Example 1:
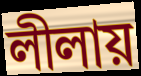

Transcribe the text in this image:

লীলায়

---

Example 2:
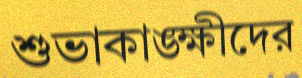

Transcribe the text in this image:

শুভাকাঙ্ক্ষীদের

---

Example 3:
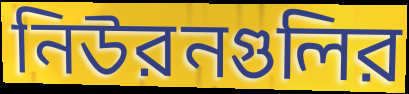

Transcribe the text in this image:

নিউরনগুলির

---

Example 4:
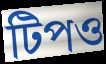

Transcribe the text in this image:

টিপও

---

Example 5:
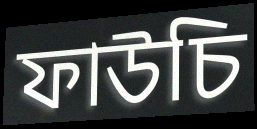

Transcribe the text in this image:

ফাউচি